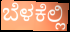
ಬೆಳಕೆಲ್ಲಿ